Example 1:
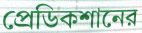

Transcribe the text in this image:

প্রেডিকশানের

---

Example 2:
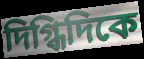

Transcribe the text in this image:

দিগ্ধিদিকে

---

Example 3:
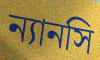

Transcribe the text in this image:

ন্যানসি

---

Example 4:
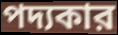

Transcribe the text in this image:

পদ্যকার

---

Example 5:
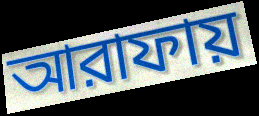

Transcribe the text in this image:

আরাফায়